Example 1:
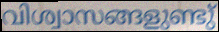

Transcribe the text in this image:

വിശ്വാസങ്ങളുണ്ടു്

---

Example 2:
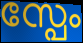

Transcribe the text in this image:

സ്പേം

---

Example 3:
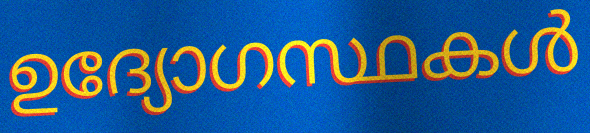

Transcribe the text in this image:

ഉദ്യോഗസ്ഥകൾ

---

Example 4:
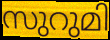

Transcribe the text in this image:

സുറുമി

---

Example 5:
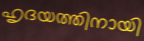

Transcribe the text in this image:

ഹൃദയത്തിനായി